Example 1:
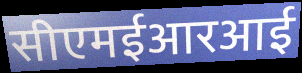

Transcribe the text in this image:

सीएमईआरआई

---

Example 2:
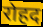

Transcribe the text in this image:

रोहद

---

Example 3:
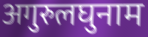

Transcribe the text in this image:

अगुरुलघुनाम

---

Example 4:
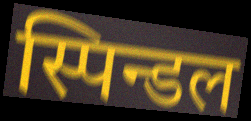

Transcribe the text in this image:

स्पिन्डल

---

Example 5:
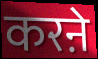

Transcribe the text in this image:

करऩे